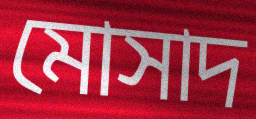
মোসাদ